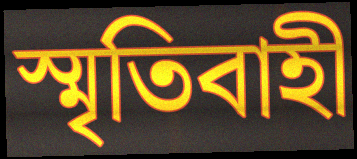
স্মৃতিবাহী